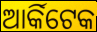
ଆର୍କିଟେକ